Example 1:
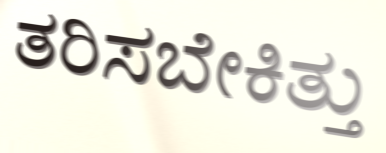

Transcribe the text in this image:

ತರಿಸಬೇಕಿತ್ತು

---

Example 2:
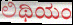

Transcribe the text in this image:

ಲಿಥಿಯಂ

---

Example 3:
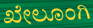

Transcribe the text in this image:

ಖೇಲೂಂಗಿ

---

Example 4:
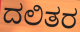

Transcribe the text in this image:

ದಲಿತರ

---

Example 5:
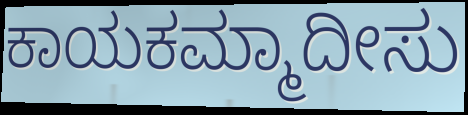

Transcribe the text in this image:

ಕಾಯಕಮ್ಮಾದೀಸು